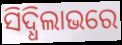
ସିଦ୍ଧିଲାଭରେ